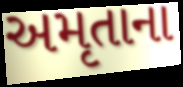
અમૃતાના